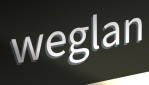
weglan